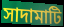
সাদামাটি